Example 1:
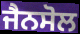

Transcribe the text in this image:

ਜੈਨਸੋਲ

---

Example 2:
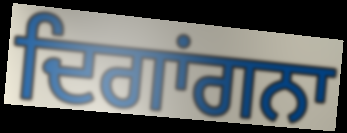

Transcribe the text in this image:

ਦਿਗਾਂਗਨਾ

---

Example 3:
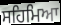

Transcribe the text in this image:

ਸਹਿਮਿਆ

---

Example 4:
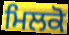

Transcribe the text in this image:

ਮਿਲਕੋ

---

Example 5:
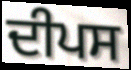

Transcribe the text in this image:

ਦੀਪਸ